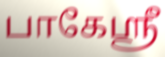
பாகேஸ்ரீ